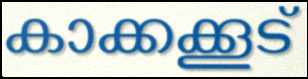
കാക്കക്കൂട്